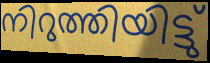
നിറുത്തിയിട്ടു്